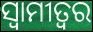
ସ୍ଵାମୀତ୍ୱର